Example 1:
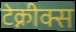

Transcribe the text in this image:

टेक्नीक्स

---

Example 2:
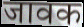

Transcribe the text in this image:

जावक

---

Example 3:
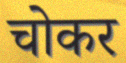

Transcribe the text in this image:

चोकर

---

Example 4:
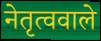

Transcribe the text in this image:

नेतृत्ववाले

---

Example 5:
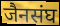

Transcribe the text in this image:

जैनसंघ